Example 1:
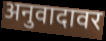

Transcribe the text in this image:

अनुवादावर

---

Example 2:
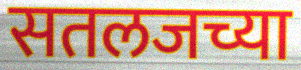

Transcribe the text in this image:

सतलजच्या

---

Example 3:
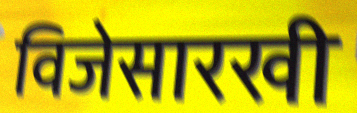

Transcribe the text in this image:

विजेसारखी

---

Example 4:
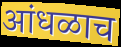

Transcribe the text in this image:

आंधळाच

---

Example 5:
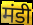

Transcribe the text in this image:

मंडी